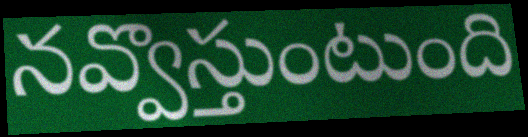
నవ్వొస్తుంటుంది